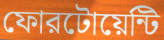
ফোরটোয়েন্টি